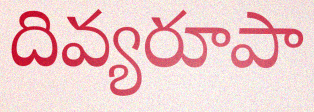
దివ్యరూపా